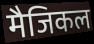
मैजिकल